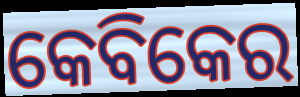
କେବିକେର